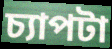
চ্যাপটা